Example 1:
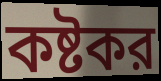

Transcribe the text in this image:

কষ্টকর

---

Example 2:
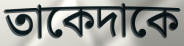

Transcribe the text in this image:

তাকেদাকে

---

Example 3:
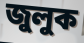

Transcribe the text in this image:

জুলুক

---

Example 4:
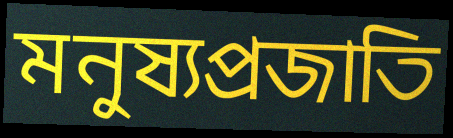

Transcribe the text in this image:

মনুষ্যপ্রজাতি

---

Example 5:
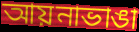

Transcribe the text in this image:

আয়নাভাঙা